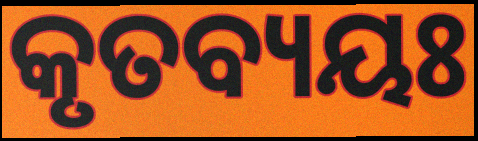
କୃତବ୍ୟୟଃ